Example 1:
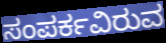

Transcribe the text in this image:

ಸಂಪರ್ಕವಿರುವ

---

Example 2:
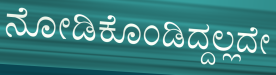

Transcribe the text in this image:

ನೋಡಿಕೊಂಡಿದ್ದಲ್ಲದೇ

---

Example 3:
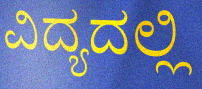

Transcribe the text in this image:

ವಿದ್ಯದಲ್ಲಿ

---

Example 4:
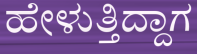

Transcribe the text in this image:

ಹೇಳುತ್ತಿದ್ದಾಗ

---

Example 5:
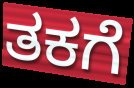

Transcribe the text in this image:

ತಕಗೆ